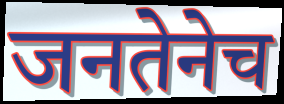
जनतेनेच